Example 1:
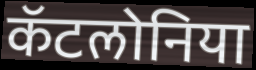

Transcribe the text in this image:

कॅटलोनिया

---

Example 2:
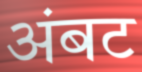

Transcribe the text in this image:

अंबट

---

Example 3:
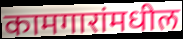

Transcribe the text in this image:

कामगारांमधील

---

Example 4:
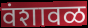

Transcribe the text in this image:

वंशावळ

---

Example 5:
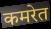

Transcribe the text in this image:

कमरेत